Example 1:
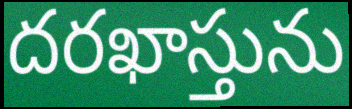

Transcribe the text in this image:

దరఖాస్తును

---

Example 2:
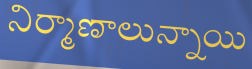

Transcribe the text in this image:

నిర్మాణాలున్నాయి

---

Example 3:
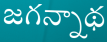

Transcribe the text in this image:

జగన్నాథ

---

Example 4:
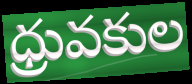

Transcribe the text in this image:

ధ్రువకుల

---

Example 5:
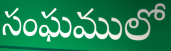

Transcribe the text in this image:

సంఘములో